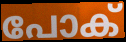
പോക്